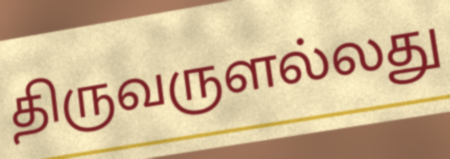
திருவருளல்லது